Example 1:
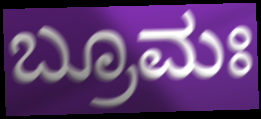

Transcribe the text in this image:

ಬ್ರೂಮಃ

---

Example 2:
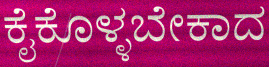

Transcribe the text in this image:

ಕೈಕೊಳ್ಳಬೇಕಾದ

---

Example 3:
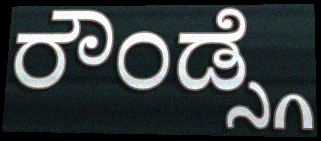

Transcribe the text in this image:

ರೌಂಡ್ಸ್ಗೆ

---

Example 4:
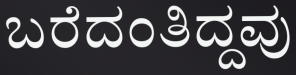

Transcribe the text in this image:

ಬರೆದಂತಿದ್ದವು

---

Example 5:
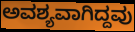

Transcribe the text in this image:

ಅವಶ್ಯವಾಗಿದ್ದವು